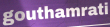
gouthamrati